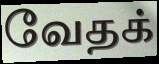
வேதக்